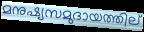
മനുഷ്യസമുദായത്തില്